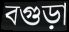
বগুড়া